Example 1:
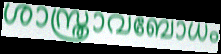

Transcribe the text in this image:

ശാസ്ത്രാവബോധം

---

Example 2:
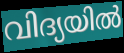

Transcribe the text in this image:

വിദ്യയിൽ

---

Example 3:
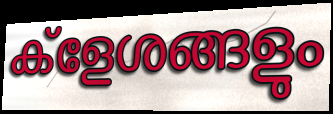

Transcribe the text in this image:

ക്ളേശങ്ങളും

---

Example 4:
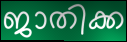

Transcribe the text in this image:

ജാതിക്ക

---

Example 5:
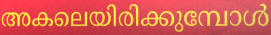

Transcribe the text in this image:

അകലെയിരിക്കുമ്പോൾ